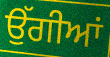
ਉੱਗੀਆਂ